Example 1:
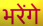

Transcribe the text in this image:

भरेंगे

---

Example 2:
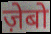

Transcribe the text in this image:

ज़ेबो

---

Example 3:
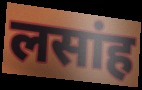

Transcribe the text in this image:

लसांह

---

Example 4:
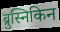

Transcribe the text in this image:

ब्रुस्निकिन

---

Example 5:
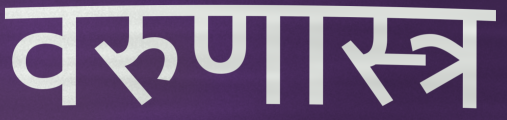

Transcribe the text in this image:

वरुणास्त्र